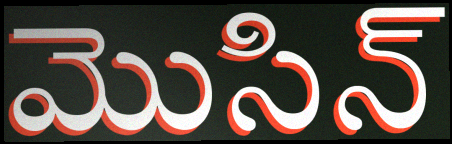
మొసిన్